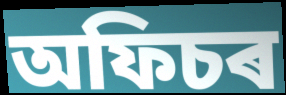
অফিচৰ